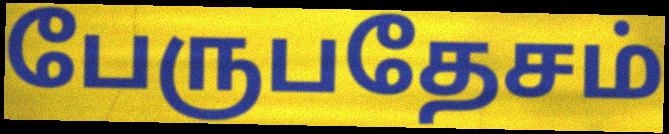
பேருபதேசம்